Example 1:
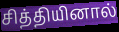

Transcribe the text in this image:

சித்தியினால்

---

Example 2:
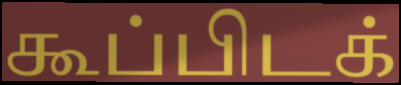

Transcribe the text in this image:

கூப்பிடக்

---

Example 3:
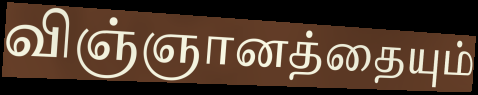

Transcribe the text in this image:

விஞ்ஞானத்தையும்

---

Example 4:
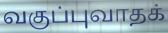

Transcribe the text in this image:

வகுப்புவாதக்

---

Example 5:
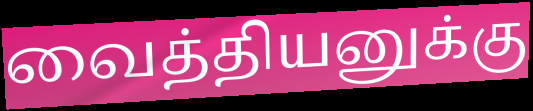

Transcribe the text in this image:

வைத்தியனுக்கு